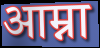
आम्ना